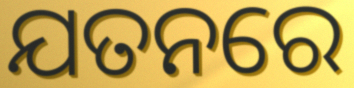
ଯତନରେ